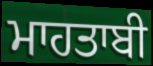
ਮਾਹਤਾਬੀ